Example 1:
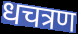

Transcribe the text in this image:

धचत्रण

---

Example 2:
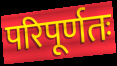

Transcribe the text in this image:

परिपूर्णतः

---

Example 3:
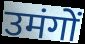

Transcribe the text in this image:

उमंगों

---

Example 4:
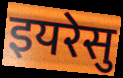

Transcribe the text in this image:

इयरेसु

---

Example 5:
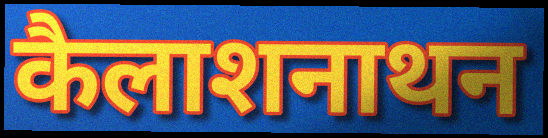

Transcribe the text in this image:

कैलाशनाथन